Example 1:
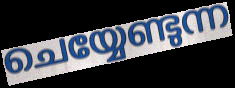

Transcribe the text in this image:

ചെയ്യേണ്ടുന്ന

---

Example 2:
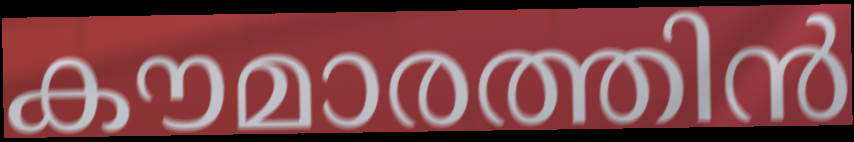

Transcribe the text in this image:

കൗമാരത്തിൻ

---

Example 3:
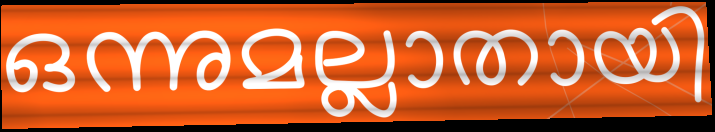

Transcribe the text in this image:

ഒന്നുമല്ലാതായി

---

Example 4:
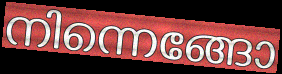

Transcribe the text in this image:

നിന്നെങ്ങോ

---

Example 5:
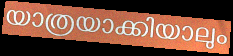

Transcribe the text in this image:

യാത്രയാക്കിയാലും